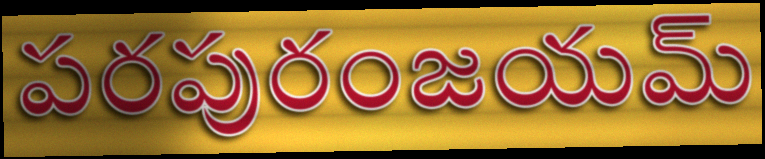
పరపురంజయమ్